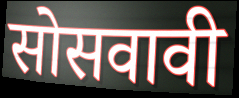
सोसवावी